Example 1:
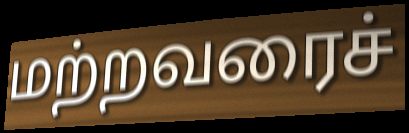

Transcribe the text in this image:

மற்றவரைச்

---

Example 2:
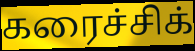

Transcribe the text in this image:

கரைச்சிக்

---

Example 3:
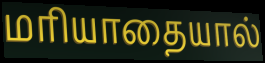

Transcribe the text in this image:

மரியாதையால்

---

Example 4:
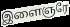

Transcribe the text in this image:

இளைஞரே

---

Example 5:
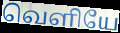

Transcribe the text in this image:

வெளியே